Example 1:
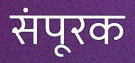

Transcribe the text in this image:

संपूरक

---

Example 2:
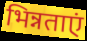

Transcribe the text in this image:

भिन्नताएं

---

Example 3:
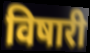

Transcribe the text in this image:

विषारी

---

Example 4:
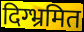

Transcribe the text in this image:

दिग्भ्रमित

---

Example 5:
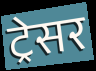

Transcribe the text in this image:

ट्रेसर